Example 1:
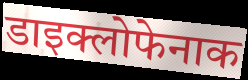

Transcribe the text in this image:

डाइक्लोफेनाक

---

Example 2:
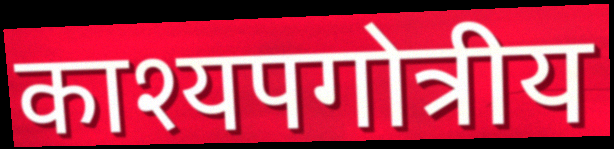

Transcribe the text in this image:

काश्यपगोत्रीय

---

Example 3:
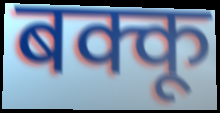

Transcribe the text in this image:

बक्कू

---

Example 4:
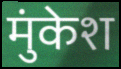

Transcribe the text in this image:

मुंकेश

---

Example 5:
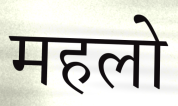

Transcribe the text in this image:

महलो